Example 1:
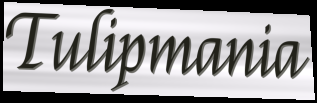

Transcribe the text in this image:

Tulipmania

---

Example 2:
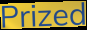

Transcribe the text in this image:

Prized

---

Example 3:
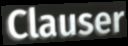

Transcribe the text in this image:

Clauser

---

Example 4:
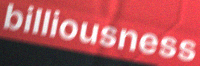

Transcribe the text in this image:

billiousness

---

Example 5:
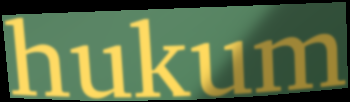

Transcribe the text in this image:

hukum